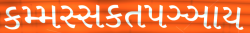
કમ્મસ્સકતપઞ્ઞાય